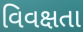
વિવક્ષતા